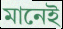
মানেই